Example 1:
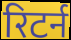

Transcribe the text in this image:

रिटर्न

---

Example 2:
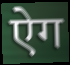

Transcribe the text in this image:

ऐग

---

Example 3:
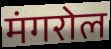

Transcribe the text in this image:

मंगरोल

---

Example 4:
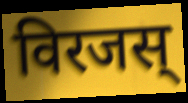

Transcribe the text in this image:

विरजस्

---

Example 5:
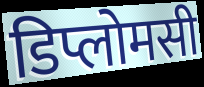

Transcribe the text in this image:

डिप्लोमसी